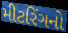
મીટરિંગનો